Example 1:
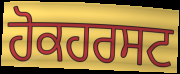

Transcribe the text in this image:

ਹੋਕਹਰਸਟ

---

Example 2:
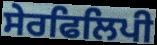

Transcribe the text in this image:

ਸੇਰਫਿਲਿਪੀ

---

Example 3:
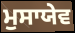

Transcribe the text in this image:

ਮੁਸਾਯੇਵ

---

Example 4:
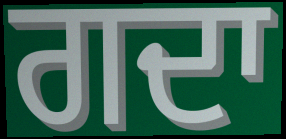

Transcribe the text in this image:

ਗਦਾ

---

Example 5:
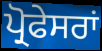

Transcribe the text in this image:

ਪ੍ਰੋਫੇਸਰਾਂ